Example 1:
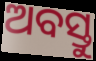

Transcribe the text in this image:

ଅବସ୍ତୁ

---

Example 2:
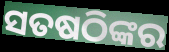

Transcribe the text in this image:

ସତଷଠିଙ୍କର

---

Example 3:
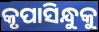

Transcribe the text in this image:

କୃପାସିନ୍ଧୁକୁ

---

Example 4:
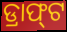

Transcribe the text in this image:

ଡ୍ରାଫ୍‍ଟ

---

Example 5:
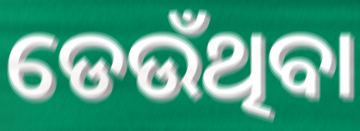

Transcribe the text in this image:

ଡେଉଁଥିବା